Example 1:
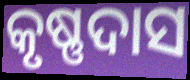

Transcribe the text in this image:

କୃଷ୍ଣଦାସ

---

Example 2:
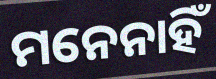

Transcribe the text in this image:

ମନେନାହିଁ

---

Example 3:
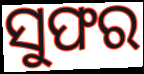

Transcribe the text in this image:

ସୁଫର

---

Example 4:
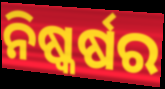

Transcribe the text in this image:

ନିଷ୍କର୍ଷର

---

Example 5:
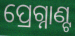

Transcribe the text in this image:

ପ୍ରେଗ୍ନାଣ୍ଟ